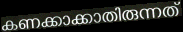
കണക്കാക്കാതിരുന്നത്